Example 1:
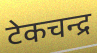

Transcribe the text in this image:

टेकचन्द्र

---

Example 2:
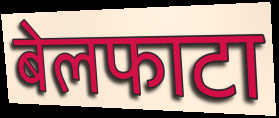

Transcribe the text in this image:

बेलफाटा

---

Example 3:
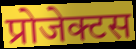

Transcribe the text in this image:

प्रोजेक्‍टस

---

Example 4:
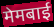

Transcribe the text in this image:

मेमबाई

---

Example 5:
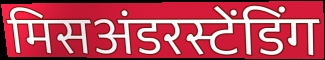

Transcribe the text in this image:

मिसअंडरस्टेंडिंग